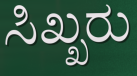
ಸಿಖ್ಖರು